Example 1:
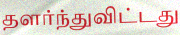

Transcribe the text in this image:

தளர்ந்துவிட்டது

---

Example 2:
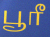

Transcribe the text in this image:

பூரீ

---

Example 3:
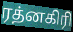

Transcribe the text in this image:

ரத்னகிரி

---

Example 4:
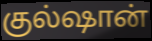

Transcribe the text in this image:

குல்ஷான்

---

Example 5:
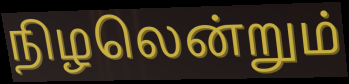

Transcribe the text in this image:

நிழலென்றும்